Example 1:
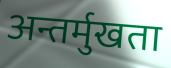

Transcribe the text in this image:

अन्तर्मुखता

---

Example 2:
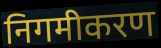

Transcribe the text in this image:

निगमीकरण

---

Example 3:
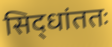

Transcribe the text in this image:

सिद्धांततः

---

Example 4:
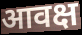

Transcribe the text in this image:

आवक्ष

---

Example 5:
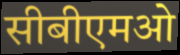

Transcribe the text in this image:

सीबीएमओ